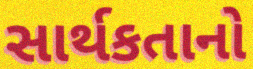
સાર્થકતાનો